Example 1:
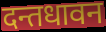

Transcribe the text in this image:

दन्तधावन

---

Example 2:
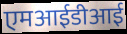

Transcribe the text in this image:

एमआईडीआई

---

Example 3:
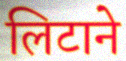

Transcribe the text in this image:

लिटाने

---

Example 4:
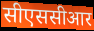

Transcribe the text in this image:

सीएससीआर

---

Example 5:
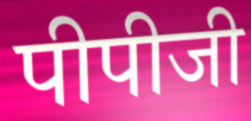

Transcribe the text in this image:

पीपीजी